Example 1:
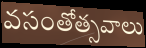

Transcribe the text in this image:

వసంతోత్సవాలు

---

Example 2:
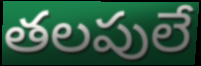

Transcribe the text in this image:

తలపులే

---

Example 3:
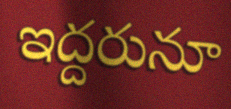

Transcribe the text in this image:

ఇద్దరునూ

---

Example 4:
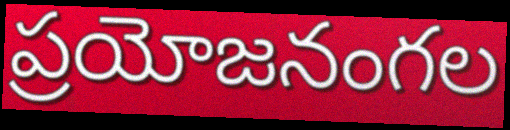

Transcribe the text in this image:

ప్రయోజనంగల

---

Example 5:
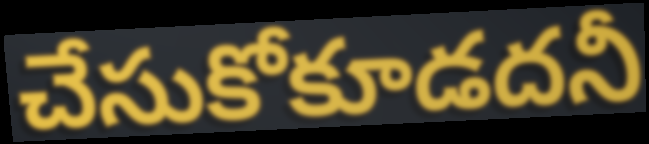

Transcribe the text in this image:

చేసుకోకూడదనీ